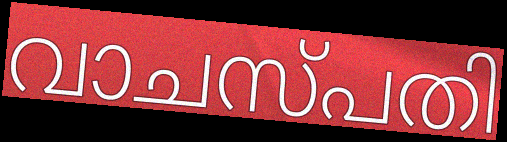
വാചസ്പതി